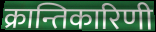
क्रान्तिकारिणी